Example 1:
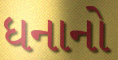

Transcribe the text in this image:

ધનાનો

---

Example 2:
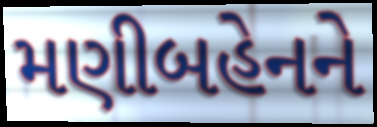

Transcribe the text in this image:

મણીબહેનને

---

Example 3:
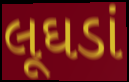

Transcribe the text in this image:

લૂઘડાં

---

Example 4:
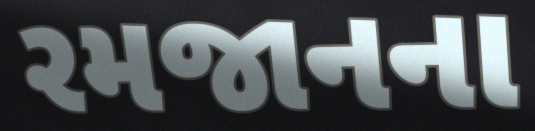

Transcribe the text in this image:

રમજાનના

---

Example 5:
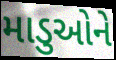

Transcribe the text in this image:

માડુઓને